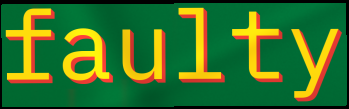
faulty